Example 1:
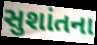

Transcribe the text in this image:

સુશાંતના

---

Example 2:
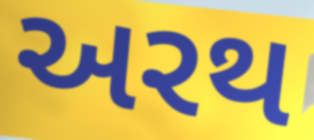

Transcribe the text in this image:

અરથ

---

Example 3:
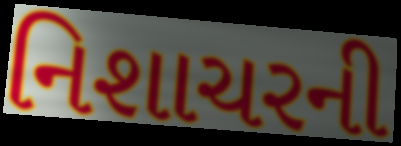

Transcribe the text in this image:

નિશાચરની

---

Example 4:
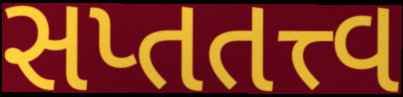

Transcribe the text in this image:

સપ્તતત્ત્વ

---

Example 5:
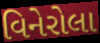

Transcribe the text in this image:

વિનેરોલા